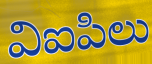
విఐపిలు